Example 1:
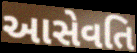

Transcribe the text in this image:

આસેવતિ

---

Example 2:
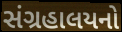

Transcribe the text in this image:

સંગ્રહાલયનો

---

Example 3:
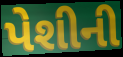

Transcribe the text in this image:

પેશીની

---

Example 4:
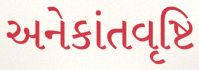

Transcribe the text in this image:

અનેકાંતવૃષ્ટિ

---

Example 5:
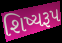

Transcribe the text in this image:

શિષ્યરૂપ